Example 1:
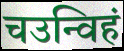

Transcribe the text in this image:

चउन्विहं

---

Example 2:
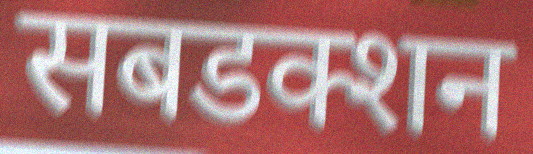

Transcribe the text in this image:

सबडक्शन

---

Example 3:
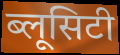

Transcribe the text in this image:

ब्लूसिटी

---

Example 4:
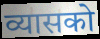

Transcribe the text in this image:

व्यासको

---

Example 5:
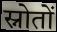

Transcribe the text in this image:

स्नोतों